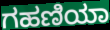
ಗಹಣಿಯಾ